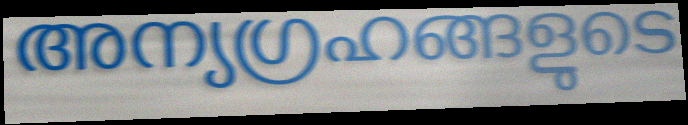
അന്യഗ്രഹങ്ങളുടെ